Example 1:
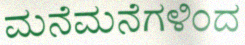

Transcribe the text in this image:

ಮನೆಮನೆಗಳಿಂದ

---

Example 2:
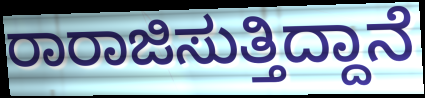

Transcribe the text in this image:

ರಾರಾಜಿಸುತ್ತಿದ್ದಾನೆ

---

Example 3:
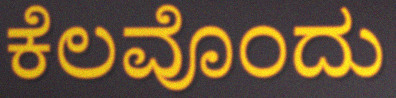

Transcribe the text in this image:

ಕೆಲವೊಂದು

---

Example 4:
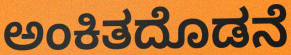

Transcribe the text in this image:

ಅಂಕಿತದೊಡನೆ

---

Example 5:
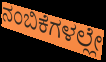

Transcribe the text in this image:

ನಂಬಿಕೆಗಳಲ್ಲೇ